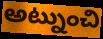
అట్నుంచి